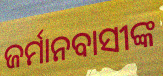
ଜର୍ମାନବାସୀଙ୍କ